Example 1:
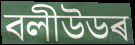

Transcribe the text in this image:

বলীউডৰ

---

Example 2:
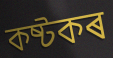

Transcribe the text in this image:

কষ্টকৰ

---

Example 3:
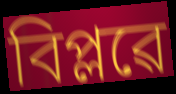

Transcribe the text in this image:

বিপ্লৱে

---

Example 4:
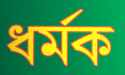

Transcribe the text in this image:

ধৰ্মক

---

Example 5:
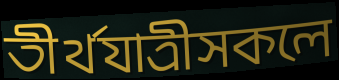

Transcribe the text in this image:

তীৰ্থযাত্ৰীসকলে